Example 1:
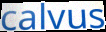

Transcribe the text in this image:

calvus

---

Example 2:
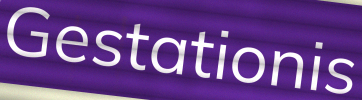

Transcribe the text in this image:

Gestationis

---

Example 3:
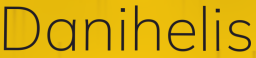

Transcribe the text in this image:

Danihelis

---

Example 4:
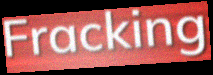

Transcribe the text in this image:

Fracking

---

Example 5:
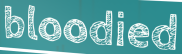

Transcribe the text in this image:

bloodied